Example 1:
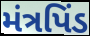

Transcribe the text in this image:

મંત્રપિંડ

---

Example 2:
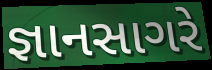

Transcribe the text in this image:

જ્ઞાનસાગરે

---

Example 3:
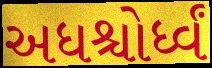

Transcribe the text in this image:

અધશ્ચોર્ધ્વં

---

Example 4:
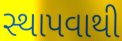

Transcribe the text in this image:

સ્થાપવાથી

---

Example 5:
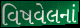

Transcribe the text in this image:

વિષવેલનાં